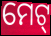
ମେଟ୍